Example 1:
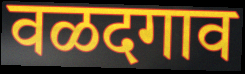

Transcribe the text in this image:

वळदगाव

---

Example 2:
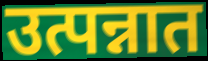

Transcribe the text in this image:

उत्पन्नात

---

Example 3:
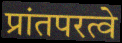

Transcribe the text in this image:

प्रांतपरत्वे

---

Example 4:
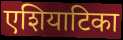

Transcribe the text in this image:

एशियाटिका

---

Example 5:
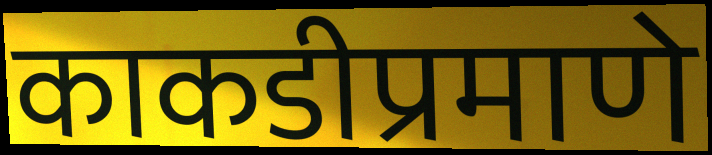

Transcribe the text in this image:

काकडीप्रमाणे